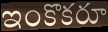
ఇంకొకరూ